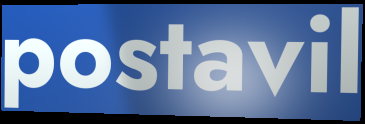
postavil